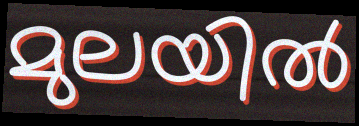
മുലയിൽ